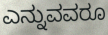
ಎನ್ನುವವರೂ